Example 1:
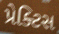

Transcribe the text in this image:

પ્રેક્ટિસ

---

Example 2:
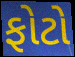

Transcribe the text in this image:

ફોટો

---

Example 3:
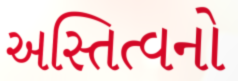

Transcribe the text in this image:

અસ્તિત્વનો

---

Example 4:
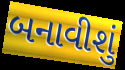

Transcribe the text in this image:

બનાવીશું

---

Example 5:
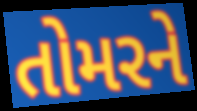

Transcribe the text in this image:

તોમરને